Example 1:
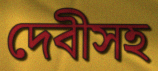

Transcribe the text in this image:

দেবীসহ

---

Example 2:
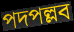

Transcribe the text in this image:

পদপল্লব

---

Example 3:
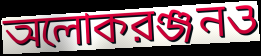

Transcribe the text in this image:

অলোকরঞ্জনও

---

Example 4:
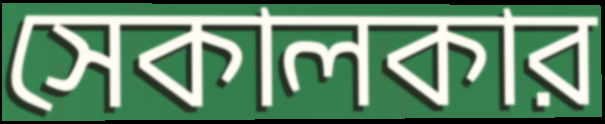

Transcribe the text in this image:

সেকালকার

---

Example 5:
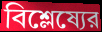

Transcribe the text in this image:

বিশ্লেষ্যের